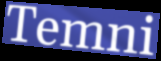
Temni